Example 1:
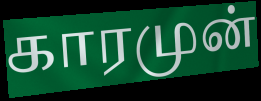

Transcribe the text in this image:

காரமுன்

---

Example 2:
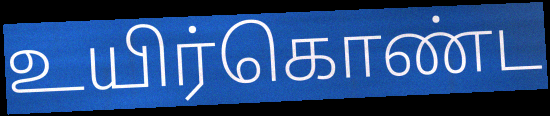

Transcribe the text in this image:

உயிர்கொண்ட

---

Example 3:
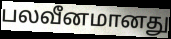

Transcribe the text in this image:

பலவீனமானது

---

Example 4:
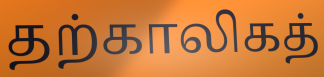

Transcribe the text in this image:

தற்காலிகத்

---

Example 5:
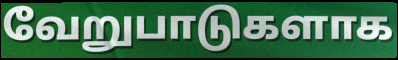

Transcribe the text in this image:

வேறுபாடுகளாக